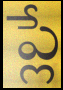
ప్లే